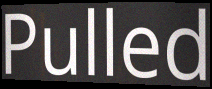
Pulled